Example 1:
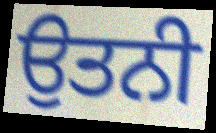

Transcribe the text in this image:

ਉਤਨੀ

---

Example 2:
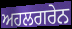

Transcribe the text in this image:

ਅਹਲਗਰੇਨ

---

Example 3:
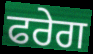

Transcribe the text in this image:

ਫਰੇਗ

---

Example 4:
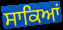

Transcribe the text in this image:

ਸਾਕਿਆਂ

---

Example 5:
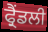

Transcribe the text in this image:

ਫ੍ਰੈਂਡਲੀ